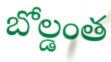
బోల్డంత